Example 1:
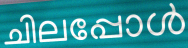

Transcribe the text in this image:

ചിലപ്പോൾ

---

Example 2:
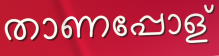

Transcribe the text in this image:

താണപ്പോള്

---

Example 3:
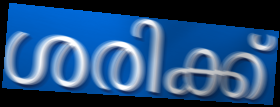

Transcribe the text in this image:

ശരിക്ക്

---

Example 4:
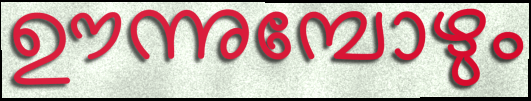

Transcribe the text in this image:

ഊന്നുമ്പോഴും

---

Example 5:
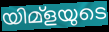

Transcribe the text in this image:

യിമ്ളയുടെ